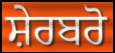
ਸ਼ੇਰਬਰੋ